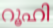
റൂഹി